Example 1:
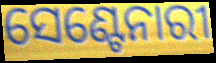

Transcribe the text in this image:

ସେଣ୍ଟେନାରୀ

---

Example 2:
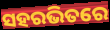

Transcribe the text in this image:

ସହରଭିତରେ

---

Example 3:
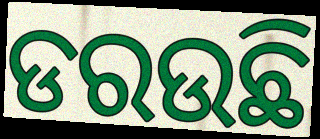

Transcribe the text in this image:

ଡରଉଛି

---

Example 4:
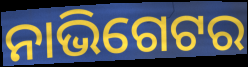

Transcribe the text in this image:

ନାଭିଗେଟର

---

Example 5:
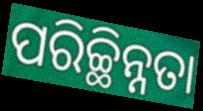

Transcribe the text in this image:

ପରିଚ୍ଛିନ୍ନତା